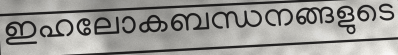
ഇഹലോകബന്ധനങ്ങളുടെ